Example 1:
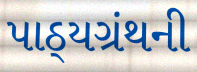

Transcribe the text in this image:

પાઠ્યગ્રંથની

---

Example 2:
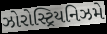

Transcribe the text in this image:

ઝોરોસ્ટ્રિયનિઝમે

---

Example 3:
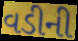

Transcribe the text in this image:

વડીની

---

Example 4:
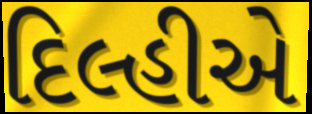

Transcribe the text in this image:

દિલ્હીએ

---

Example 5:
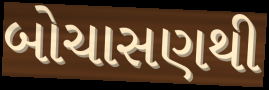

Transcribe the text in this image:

બોચાસણથી